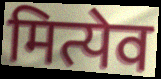
मित्येव